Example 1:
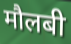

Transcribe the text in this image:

मौलबी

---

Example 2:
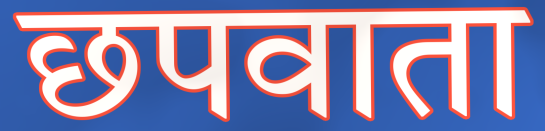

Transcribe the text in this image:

छपवाता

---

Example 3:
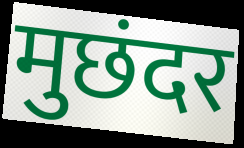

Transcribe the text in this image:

मुछंदर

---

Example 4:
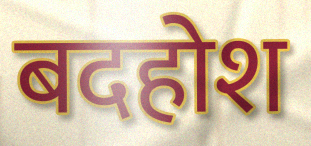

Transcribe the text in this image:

बदहोश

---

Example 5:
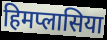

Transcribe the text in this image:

हिमप्लासिया